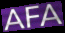
AFA